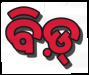
ବିଡ଼୍